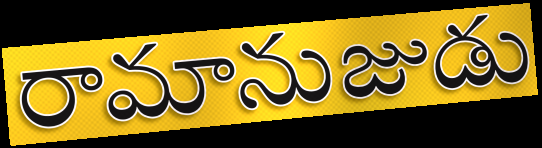
రామానుజుడు